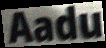
Aadu